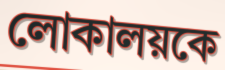
লোকালয়কে